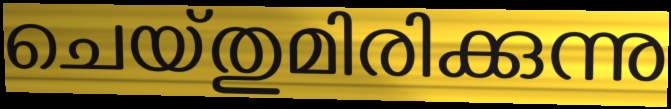
ചെയ്തുമിരിക്കുന്നു